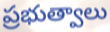
ప్రభుత్వాలు